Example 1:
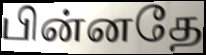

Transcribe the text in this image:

பின்னதே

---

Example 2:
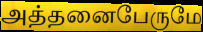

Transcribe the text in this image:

அத்தனைபேருமே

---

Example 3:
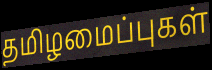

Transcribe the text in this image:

தமிழமைப்புகள்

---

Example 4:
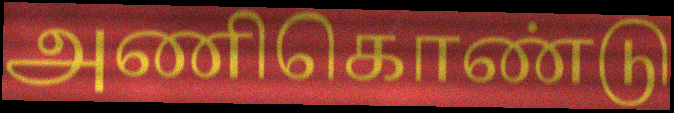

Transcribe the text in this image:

அணிகொண்டு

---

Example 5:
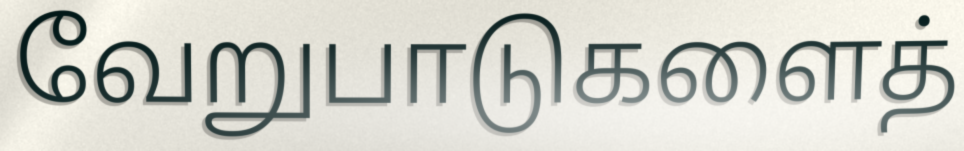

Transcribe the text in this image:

வேறுபாடுகளைத்